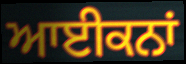
ਆਈਕਨਾਂ